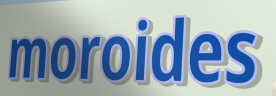
moroides